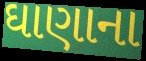
ઘાણાના